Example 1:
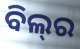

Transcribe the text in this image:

ବିଲ୍‌ର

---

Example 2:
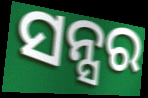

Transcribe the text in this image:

ସନ୍ସର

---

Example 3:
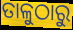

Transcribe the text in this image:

ତାଳୁଠାରୁ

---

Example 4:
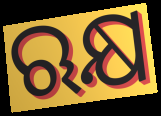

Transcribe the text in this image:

ଋକ୍ଷ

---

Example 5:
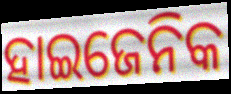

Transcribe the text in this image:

ହାଇଜେନିକ